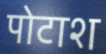
पोटाश